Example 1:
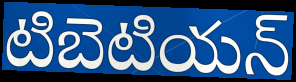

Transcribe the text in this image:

టిబెటియన్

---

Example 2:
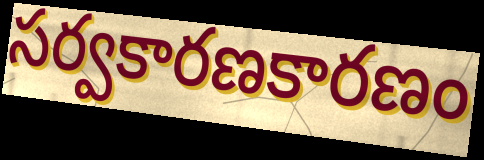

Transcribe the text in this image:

సర్వకారణకారణం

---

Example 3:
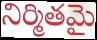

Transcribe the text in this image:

నిర్మితమై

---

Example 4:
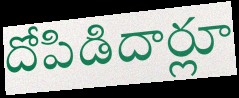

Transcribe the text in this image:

దోపిడిదార్లూ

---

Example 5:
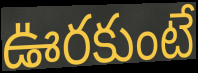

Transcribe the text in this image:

ఊరకుంటే